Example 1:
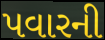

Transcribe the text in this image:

પવારની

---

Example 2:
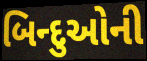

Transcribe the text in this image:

બિન્દુઓની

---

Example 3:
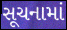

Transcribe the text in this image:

સૂચનામાં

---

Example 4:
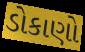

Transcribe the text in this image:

ડોકાણો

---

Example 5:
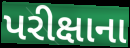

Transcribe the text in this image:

પરીક્ષાના